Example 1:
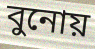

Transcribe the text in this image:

বুনোয়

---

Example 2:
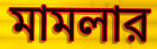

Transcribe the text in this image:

মামলার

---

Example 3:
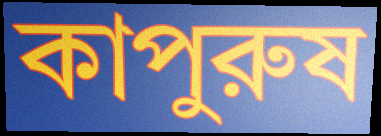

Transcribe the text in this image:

কাপুরুষ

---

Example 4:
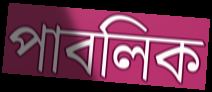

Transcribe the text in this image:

পাবলিক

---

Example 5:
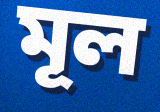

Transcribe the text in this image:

মূল